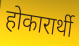
होकारार्थी